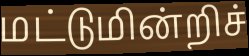
மட்டுமின்றிச்